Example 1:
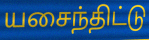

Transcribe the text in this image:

யசைந்திட்டு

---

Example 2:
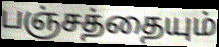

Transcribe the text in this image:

பஞ்சத்தையும்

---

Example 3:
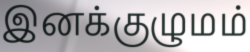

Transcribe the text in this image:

இனக்குழுமம்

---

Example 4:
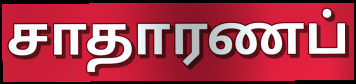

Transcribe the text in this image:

சாதாரணப்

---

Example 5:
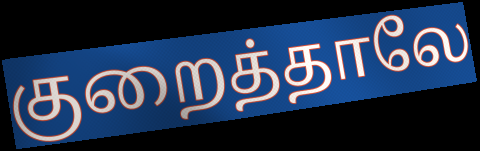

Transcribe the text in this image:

குறைத்தாலே